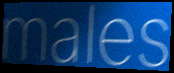
males